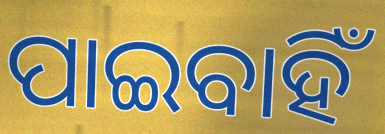
ପାଇବାହିଁ